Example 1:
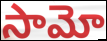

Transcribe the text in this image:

సామో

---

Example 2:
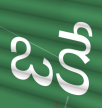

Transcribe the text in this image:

ఒకే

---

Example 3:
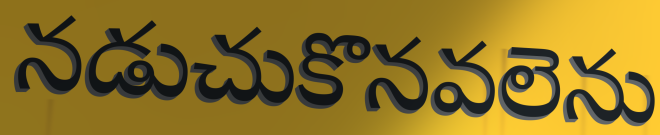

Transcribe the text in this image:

నడుచుకొనవలెను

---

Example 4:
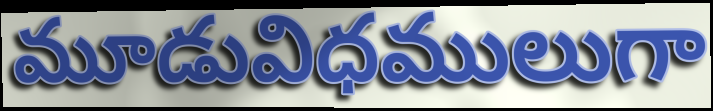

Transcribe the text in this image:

మూడువిధములుగా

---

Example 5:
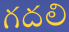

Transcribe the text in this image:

గదలి